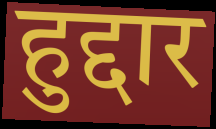
हुद्दार